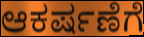
ಆಕರ್ಷಣೆಗೆ